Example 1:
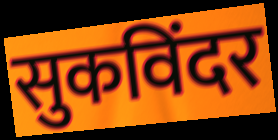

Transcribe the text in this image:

सुकविंदर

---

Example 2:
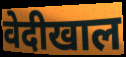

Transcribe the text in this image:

वेदीखाल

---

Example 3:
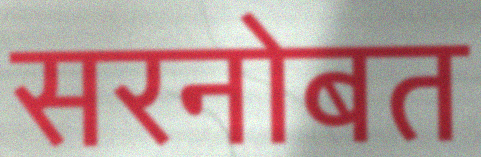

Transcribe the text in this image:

सरनोबत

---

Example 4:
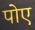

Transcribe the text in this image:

पोए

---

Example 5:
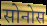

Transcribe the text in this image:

सोनोस